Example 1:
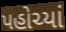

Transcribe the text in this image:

પહોચ્યાં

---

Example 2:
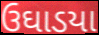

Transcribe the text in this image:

ઉઘાડયા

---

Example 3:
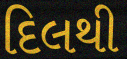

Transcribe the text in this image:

દિલથી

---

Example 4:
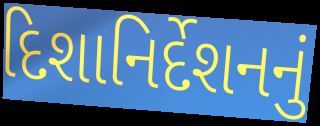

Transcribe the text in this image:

દિશાનિર્દેશનનું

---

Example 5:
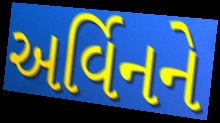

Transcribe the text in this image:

અર્વિનને